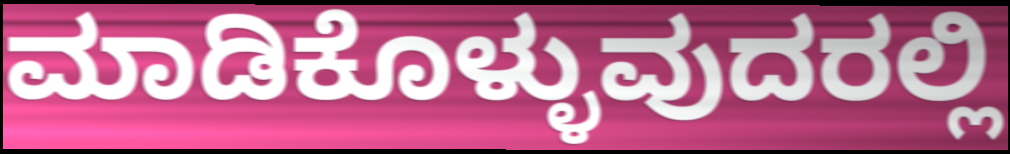
ಮಾಡಿಕೊಳ್ಳುವುದರಲ್ಲಿ